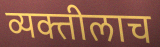
व्यक्तीलाच